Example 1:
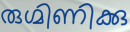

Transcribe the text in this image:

രുഗ്മിണിക്കു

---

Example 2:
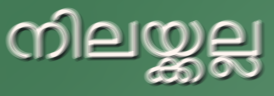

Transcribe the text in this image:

നിലയ്ക്കല്ല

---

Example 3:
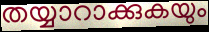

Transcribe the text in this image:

തയ്യാറാക്കുകയും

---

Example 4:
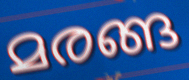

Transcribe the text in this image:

മരങ്ങ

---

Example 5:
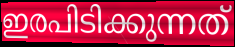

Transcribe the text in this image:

ഇരപിടിക്കുന്നത്